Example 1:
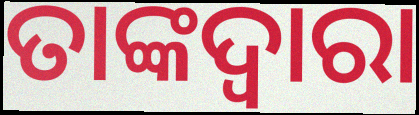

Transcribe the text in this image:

ତାଙ୍କଦ୍ୱାରା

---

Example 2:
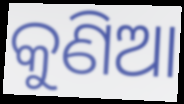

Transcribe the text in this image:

କୁଣିଆ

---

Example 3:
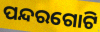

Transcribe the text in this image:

ପନ୍ଦରଗୋଟି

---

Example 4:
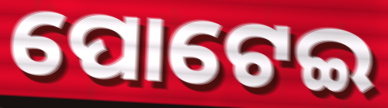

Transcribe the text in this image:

ପୋଟେଇ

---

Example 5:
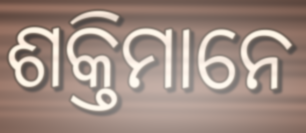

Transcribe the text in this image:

ଶକ୍ତିମାନେ